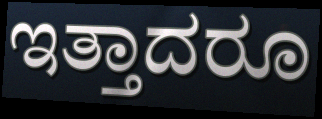
ಇತ್ತಾದರೂ